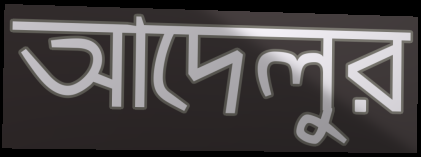
আদেলুর